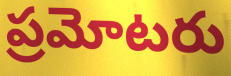
ప్రమోటరు